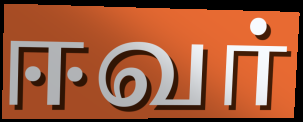
ஈவர்